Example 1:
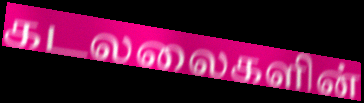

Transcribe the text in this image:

கடலலைகளின்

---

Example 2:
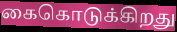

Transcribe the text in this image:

கைகொடுக்கிறது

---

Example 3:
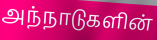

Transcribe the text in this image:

அந்நாடுகளின்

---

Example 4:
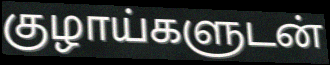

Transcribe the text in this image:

குழாய்களுடன்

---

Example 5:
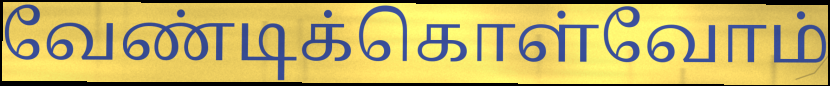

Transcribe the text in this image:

வேண்டிக்கொள்வோம்